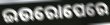
ଇଉରୋପେରେ